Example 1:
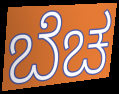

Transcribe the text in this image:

ಬೆಚ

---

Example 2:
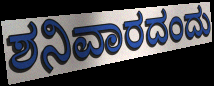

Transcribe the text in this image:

ಶನಿವಾರದಂದು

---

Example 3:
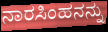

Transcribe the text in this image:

ನಾರಸಿಂಹನನ್ನು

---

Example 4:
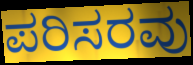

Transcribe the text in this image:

ಪರಿಸರವು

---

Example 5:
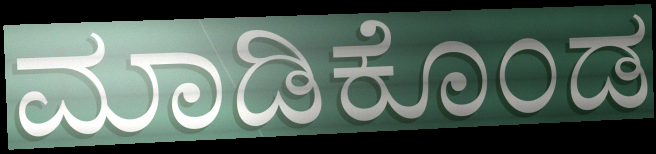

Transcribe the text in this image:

ಮಾಡಿಕೊಂಡ